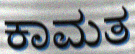
ಕಾಮತ